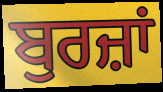
ਬੁਰਜ਼ਾਂ